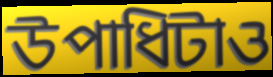
উপাধিটাও